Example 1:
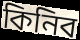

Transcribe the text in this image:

কিনিব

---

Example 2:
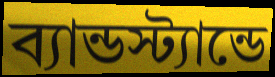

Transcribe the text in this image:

ব্যান্ডস্ট্যান্ডে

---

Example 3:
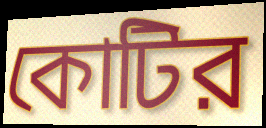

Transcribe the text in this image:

কোটির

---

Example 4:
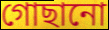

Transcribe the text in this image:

গোছানো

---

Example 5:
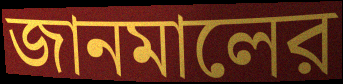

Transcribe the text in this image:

জানমালের